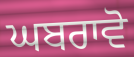
ਘਬਰਾਵੋ